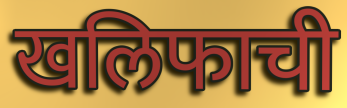
खलिफाची